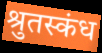
श्रुतस्कंध